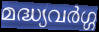
മദ്ധ്യവർഗ്ഗ